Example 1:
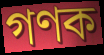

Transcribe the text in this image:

গণক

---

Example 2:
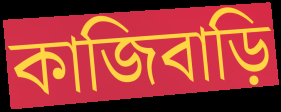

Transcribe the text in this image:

কাজিবাড়ি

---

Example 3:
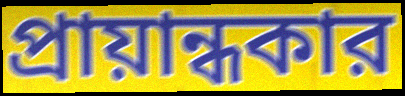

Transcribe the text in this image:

প্রায়ান্ধকার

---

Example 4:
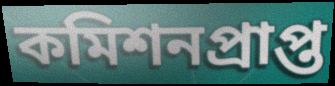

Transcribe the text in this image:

কমিশনপ্রাপ্ত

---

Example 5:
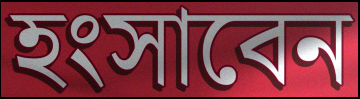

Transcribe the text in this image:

হংসাবেন